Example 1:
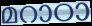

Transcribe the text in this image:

മറാഠാ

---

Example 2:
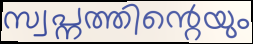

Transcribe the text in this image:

സ്വപ്നത്തിന്റെയും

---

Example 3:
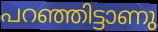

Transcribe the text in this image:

പറഞ്ഞിട്ടാണു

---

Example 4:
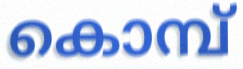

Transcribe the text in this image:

കൊമ്പ്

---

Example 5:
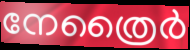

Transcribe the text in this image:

നേത്രൈർ